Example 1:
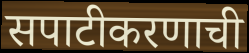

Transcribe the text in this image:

सपाटीकरणाची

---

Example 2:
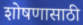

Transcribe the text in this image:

शोषणासाठी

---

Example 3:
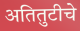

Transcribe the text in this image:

अतितुटीचे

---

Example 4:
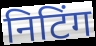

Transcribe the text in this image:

निटिंग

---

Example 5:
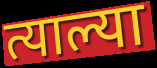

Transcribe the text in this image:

त्याल्या